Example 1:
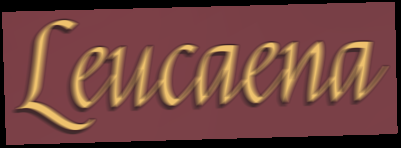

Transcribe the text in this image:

Leucaena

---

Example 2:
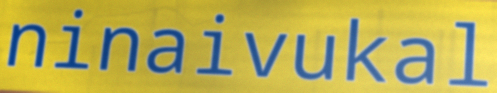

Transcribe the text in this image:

ninaivukal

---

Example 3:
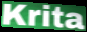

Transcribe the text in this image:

Krita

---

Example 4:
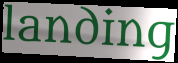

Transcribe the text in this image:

landing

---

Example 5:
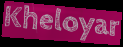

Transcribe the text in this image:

Kheloyar